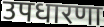
उपधारणा